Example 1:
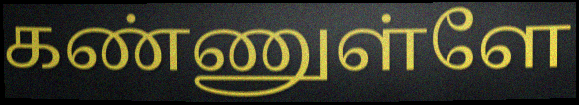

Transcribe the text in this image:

கண்ணுள்ளே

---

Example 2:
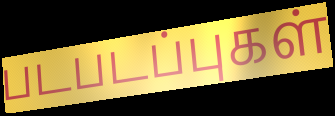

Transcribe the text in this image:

படபடப்புகள்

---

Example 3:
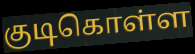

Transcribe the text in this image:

குடிகொள்ள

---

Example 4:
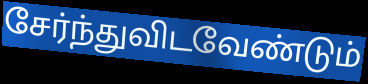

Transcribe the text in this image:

சேர்ந்துவிடவேண்டும்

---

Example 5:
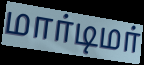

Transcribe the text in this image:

மார்டிமர்